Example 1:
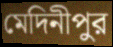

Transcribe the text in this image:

মেদিনীপুর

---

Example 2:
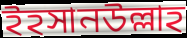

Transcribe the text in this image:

ইহসানউল্লাহ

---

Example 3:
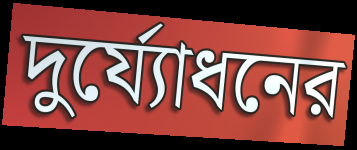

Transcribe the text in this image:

দুর্য্যোধনের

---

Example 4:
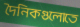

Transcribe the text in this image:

দৈনিকগুলোতে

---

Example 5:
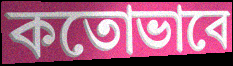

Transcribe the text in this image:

কতোভাবে